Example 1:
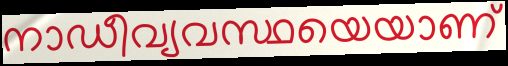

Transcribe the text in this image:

നാഡീവ്യവസ്ഥയെയാണ്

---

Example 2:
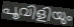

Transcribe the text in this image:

പൂവിളിയും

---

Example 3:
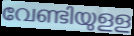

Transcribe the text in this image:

വേണ്ടിയുളള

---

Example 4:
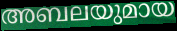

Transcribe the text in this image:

അബലയുമായ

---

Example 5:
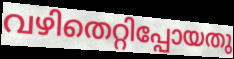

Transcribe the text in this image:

വഴിതെറ്റിപ്പോയതു